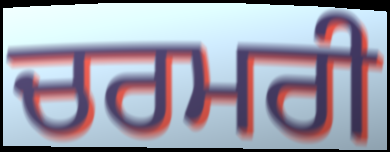
ਚਰਮਰੀ